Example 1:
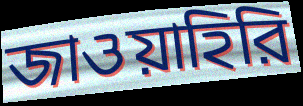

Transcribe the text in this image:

জাওয়াহিরি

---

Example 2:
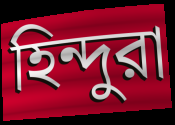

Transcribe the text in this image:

হিন্দুরা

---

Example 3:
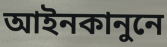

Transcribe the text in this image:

আইনকানুনে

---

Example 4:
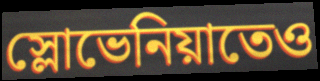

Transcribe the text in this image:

স্লোভেনিয়াতেও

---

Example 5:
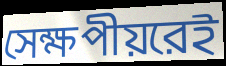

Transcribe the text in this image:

সেক্ষপীয়রেই